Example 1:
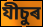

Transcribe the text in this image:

যীচুৰ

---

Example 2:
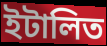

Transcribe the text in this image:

ইটালিত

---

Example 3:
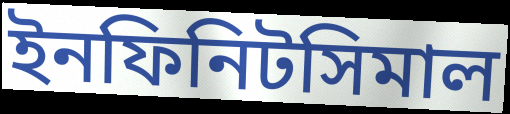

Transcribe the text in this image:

ইনফিনিটসিমাল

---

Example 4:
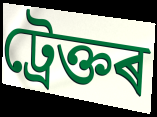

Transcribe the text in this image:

ট্ৰেক্তৰ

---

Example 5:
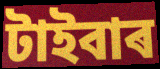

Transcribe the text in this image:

টাইবাৰ